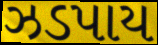
ઝડપાય